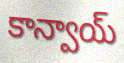
కాన్వాయ్